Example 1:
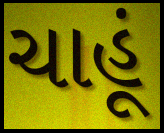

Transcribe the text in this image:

ચાહૂં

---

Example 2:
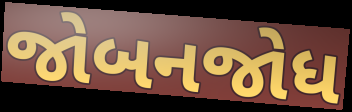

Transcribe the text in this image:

જોબનજોધ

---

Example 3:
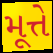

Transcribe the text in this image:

મૂત્તે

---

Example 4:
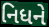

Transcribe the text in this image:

નિધને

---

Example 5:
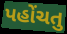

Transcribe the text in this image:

પહોંચતુ